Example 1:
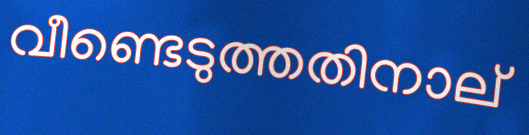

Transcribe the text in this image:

വീണ്ടെടുത്തതിനാല്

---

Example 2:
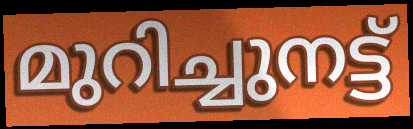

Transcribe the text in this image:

മുറിച്ചുനട്ട്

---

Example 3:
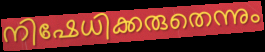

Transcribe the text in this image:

നിഷേധിക്കരുതെന്നും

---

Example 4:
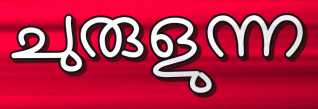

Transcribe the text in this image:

ചുരുളുന്ന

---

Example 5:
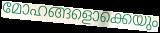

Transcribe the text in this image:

മോഹങ്ങളൊക്കെയും